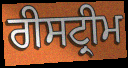
ਰੀਸਟ੍ਰੀਮ